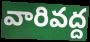
వారివద్ద